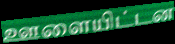
ஊளையிட்டன